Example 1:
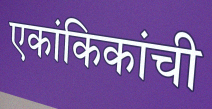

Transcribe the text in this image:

एकांकिकांची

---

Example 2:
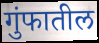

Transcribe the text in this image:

गुंफातील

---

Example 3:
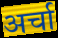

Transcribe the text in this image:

अर्चा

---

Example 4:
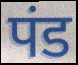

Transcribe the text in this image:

पंड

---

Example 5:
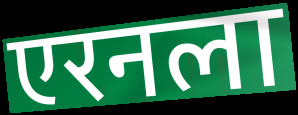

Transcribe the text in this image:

एरनला